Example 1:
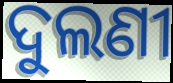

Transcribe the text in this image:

ଦୁଲଣୀ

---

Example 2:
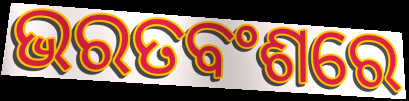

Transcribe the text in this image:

ଭରତବଂଶରେ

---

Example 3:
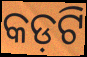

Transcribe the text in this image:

କଡ଼ଟି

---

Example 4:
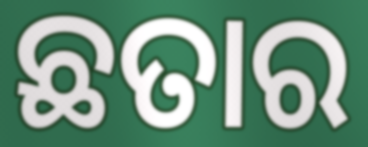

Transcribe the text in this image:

ଛତାର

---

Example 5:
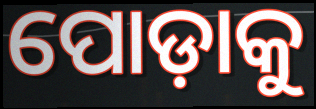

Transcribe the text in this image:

ପୋଡ଼ାକୁ